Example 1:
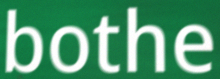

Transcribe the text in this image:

bothe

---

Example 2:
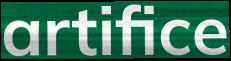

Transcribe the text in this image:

artifice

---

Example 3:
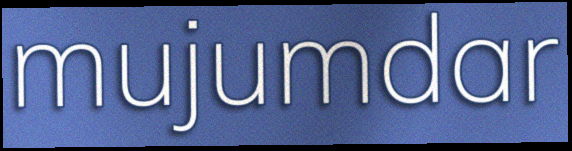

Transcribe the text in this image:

mujumdar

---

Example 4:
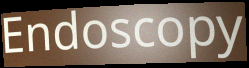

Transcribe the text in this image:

Endoscopy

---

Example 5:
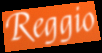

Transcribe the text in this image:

Reggio